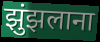
झुंझलाना